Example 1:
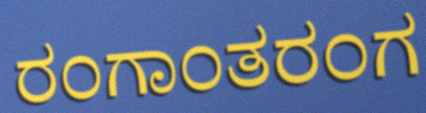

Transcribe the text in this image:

ರಂಗಾಂತರಂಗ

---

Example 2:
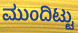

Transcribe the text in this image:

ಮುಂದಿಟ್ಟು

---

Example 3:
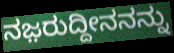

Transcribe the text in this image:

ನಜ಼ರುದ್ದೀನನನ್ನು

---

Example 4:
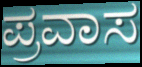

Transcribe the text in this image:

ಪ್ರವಾಸ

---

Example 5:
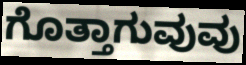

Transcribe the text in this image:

ಗೊತ್ತಾಗುವುವು